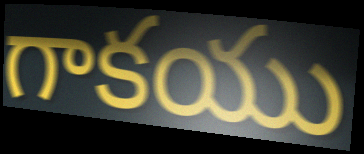
గాకయు